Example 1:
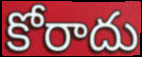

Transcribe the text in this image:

కోరాదు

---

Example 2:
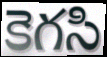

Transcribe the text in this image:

కెగసి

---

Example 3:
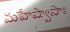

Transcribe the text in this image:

మహేష్వాసాః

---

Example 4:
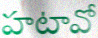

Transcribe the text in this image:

హటావో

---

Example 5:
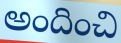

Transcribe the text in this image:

అందించి